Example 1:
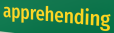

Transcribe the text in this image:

apprehending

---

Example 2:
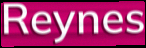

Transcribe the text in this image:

Reynes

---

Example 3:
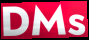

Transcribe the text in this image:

DMs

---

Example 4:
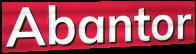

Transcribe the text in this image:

Abantor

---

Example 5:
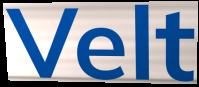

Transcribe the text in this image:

Velt